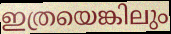
ഇത്രയെങ്കിലും